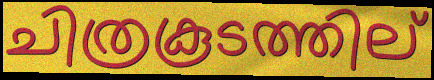
ചിത്രകൂടത്തില്